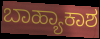
ಬಾಹ್ಯಾಕಾಶ